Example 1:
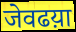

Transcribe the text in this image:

जेवढय़ा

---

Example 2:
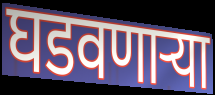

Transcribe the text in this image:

घडवणाऱ्या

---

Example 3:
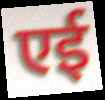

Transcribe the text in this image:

एई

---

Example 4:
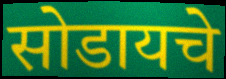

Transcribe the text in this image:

सोडायचे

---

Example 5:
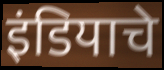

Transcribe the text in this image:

इंडियाचे